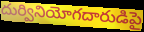
దుర్వినియోగదారుడిపై